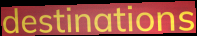
destinations